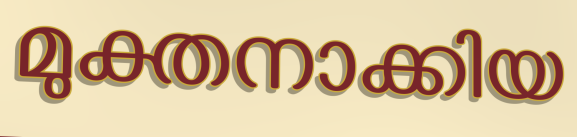
മുക്തനാക്കിയ